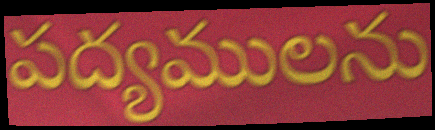
పద్యములను